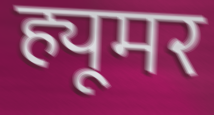
ह्यूमर